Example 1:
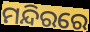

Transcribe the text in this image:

ମନ୍ଦିରରେ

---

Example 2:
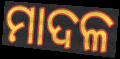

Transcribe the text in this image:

ମାଦଳ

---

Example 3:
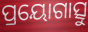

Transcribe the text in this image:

ପ୍ରୟୋଗାତ୍ସୁ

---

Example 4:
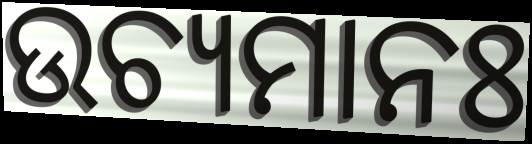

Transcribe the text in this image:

ଉଚ୍ୟମାନଃ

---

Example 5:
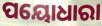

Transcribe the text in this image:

ପୟୋଧାରା